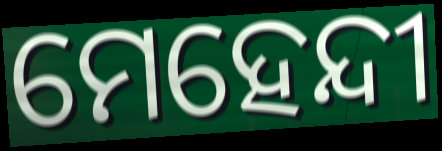
ମେହେନ୍ଦୀ